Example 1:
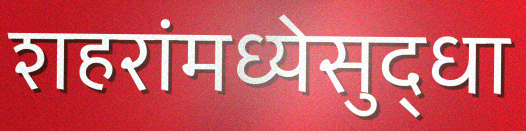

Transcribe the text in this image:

शहरांमध्येसुद्धा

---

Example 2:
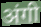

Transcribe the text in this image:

अंगी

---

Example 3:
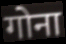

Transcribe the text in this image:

गोना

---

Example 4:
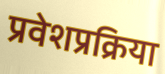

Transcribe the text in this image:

प्रवेशप्रक्रिया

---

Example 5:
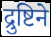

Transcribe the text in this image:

द्रुष्टिने